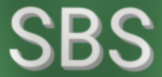
SBS